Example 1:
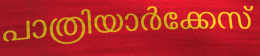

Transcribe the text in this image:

പാത്രിയാർക്കേസ്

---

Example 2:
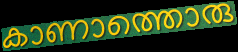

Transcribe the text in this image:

കാണാത്തൊരു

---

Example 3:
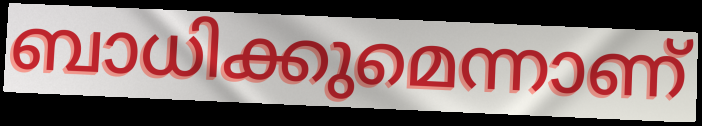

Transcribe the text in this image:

ബാധിക്കുമെന്നാണ്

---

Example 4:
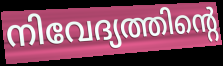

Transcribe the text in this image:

നിവേദ്യത്തിന്റെ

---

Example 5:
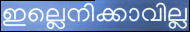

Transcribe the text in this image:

ഇല്ലെനിക്കാവില്ല